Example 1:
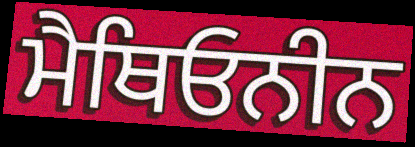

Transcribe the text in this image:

ਮੈਥਿਓਨੀਨ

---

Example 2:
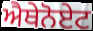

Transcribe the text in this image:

ਐਥੇਨੋਏਟ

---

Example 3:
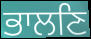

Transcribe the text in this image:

ਭਾਲਣਿ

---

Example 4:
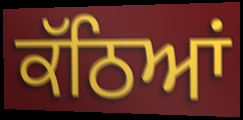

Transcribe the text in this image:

ਕੱਠਿਆਂ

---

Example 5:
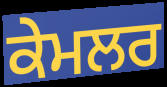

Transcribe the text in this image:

ਕੇਮਲਰ